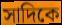
সাদিকে